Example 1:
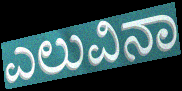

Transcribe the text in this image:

ಎಲುವಿನಾ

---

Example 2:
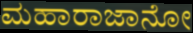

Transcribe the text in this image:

ಮಹಾರಾಜಾನೋ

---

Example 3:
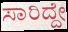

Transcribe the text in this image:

ಸಾರಿದ್ದೇ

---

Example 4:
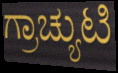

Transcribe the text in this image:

ಗ್ರಾಚ್ಯುಟಿ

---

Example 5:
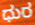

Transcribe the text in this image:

ಧುರ